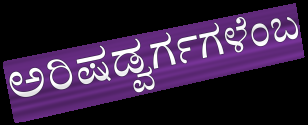
ಅರಿಷಡ್ವರ್ಗಗಳೆಂಬ